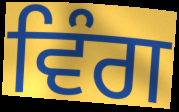
ਵਿੰਗ